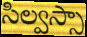
సిల్వస్సా